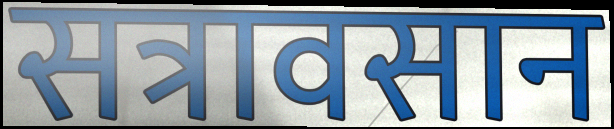
सत्रावसान